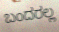
ಬಂದರಲ್ಲ